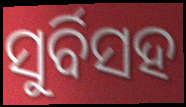
ସୁର୍ବିସହ